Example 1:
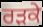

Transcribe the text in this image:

ਰੜਕੇ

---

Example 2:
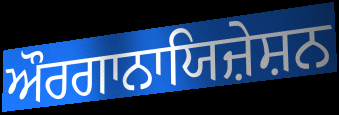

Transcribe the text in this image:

ਔਰਗਾਨਾਯਿਜ਼ੇਸ਼ਨ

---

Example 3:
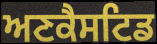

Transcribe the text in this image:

ਅਣਕੈਸਟਿਡ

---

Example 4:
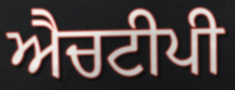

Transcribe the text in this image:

ਐਚਟੀਪੀ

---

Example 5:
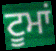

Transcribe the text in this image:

ਟੂਮਾਂ